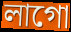
লাগো